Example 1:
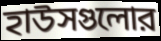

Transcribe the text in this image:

হাউসগুলোর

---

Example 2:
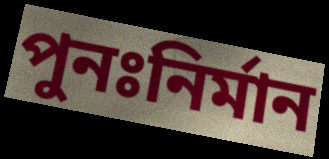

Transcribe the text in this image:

পুনঃনির্মান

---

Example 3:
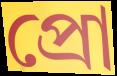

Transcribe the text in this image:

প্রো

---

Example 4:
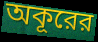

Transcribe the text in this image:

অকূরের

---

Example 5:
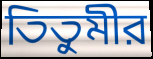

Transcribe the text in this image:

তিতুমীর